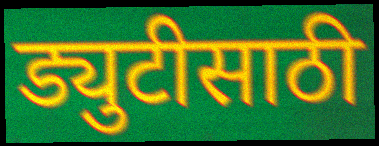
ड्युटीसाठी